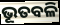
ଭୂତବଳି